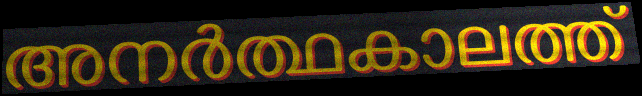
അനർത്ഥകാലത്ത്